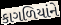
કાગળિયાંને